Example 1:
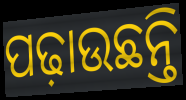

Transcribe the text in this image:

ପଢ଼ାଉଛନ୍ତି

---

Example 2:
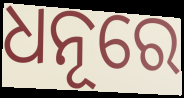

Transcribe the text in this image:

ଧନୂରେ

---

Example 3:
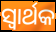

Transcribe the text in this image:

ସ୍ବାର୍ଥକ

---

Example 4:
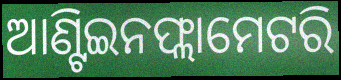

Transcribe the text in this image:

ଆଣ୍ଟିଇନଫ୍ଲାମେଟରି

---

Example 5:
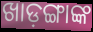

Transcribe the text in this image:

ଖାଡ଼ଙ୍ଗାଙ୍କ